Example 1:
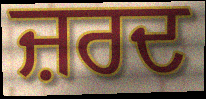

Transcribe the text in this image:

ਜ਼ਰਦ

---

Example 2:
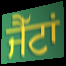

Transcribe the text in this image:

ਜੈੱਟਾਂ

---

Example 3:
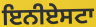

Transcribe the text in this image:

ਇਨੀਏਸਟਾ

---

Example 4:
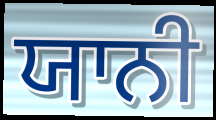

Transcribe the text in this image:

ਯਾਨੀ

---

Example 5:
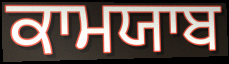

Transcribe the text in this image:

ਕਾਮਯਾਬ